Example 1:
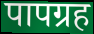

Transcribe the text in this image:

पापग्रह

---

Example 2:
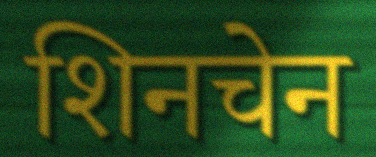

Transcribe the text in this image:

शिनचेन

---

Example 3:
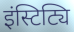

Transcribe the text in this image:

इंस्टिट्यि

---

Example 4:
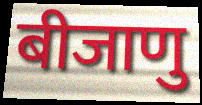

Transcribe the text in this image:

बीजाणु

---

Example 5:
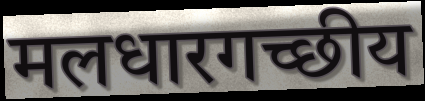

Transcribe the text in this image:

मलधारगच्छीय